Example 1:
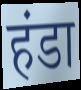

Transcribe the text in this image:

हंडा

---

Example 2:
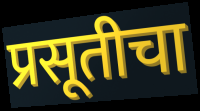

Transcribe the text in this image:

प्रसूतीचा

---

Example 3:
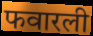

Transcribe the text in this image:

फवारली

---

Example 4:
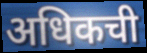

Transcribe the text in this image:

अधिकची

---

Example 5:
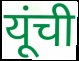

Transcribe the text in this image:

यूंची